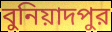
বুনিয়াদপুর